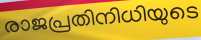
രാജപ്രതിനിധിയുടെ